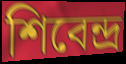
শিবেন্দ্র